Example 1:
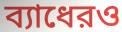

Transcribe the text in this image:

ব্যাধেরও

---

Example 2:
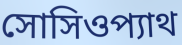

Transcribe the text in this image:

সোসিওপ্যাথ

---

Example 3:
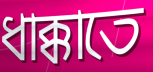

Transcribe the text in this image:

ধাক্কাতে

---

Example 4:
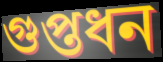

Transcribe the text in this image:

গুপ্তধন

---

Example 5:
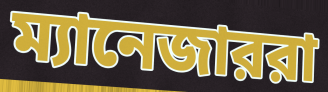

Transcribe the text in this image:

ম্যানেজাররা